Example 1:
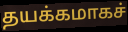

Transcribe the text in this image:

தயக்கமாகச்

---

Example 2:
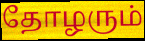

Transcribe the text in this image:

தோழரும்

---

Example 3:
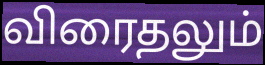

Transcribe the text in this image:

விரைதலும்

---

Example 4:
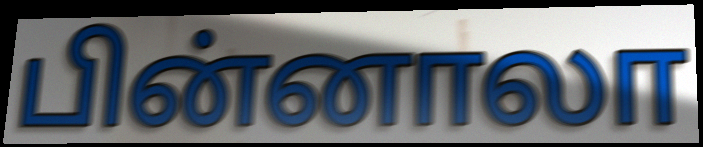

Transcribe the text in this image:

பின்னாலா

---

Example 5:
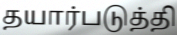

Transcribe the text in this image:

தயார்படுத்தி